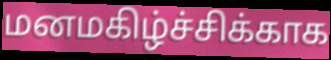
மனமகிழ்ச்சிக்காக